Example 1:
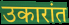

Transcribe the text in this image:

उकारांत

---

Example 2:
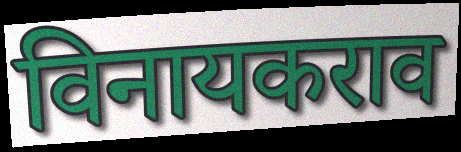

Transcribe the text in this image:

विनायकराव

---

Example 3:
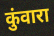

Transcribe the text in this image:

कुंवारा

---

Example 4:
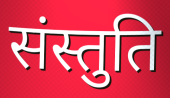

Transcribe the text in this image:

संस्तुति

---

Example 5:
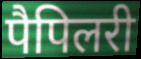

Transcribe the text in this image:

पैपिलरी